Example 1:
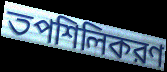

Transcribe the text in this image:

তপশিলিকরণ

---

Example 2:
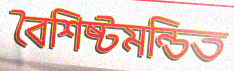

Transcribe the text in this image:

বৈশিষ্টমন্ডিত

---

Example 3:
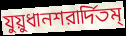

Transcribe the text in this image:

যুয়ুধানশরার্দিতম্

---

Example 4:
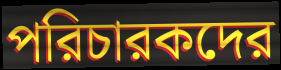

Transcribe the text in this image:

পরিচারকদের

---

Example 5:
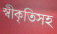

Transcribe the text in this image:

স্বীকৃতিসহ